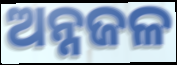
ଅନ୍ନଜଳ